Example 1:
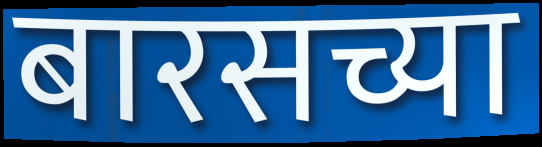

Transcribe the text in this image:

बारसच्या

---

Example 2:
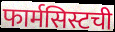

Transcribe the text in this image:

फार्मसिस्टची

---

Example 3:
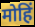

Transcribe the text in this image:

मोहिं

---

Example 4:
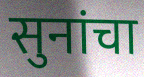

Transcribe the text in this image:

सुनांचा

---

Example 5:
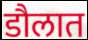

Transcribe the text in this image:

डौलात